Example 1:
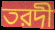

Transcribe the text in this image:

তরদী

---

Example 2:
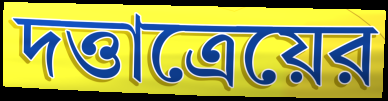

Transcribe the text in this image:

দত্তাত্রেয়ের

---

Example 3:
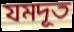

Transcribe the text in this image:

যমদূত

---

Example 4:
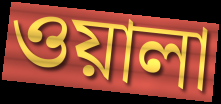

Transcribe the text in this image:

ওয়ালা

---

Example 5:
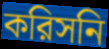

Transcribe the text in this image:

করিসনি